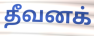
தீவனக்